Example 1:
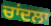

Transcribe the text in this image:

ਚਾਂਦਲਾ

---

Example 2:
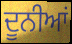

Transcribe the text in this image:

ਦੂਨੀਆਂ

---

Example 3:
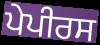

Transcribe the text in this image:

ਪੇਪੀਰਸ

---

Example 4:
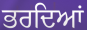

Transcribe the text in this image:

ਭਰਦਿਆਂ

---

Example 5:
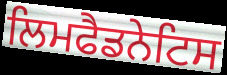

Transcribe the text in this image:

ਲਿਮਫੈਡਨੇਟਿਸ